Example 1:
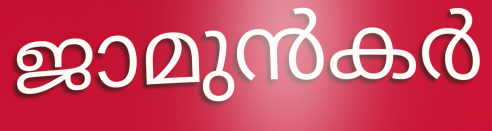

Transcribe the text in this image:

ജാമുൻകർ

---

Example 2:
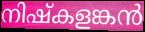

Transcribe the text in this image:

നിഷ്കളങ്കൻ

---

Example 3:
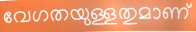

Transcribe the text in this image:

വേഗതയുള്ളതുമാണ്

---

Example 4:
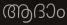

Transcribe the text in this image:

ആദാം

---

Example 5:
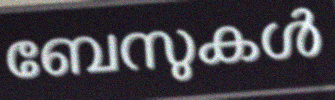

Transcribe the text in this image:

ബേസുകൾ